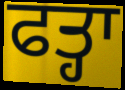
ਫਤ੍ਹਾ